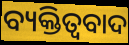
ବ୍ୟକ୍ତିତ୍ବବାଦ